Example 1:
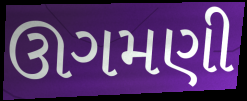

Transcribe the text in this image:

ઊગમણી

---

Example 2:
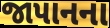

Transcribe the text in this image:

જાપાનના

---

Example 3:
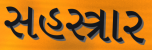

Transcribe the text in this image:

સહસ્ત્રાર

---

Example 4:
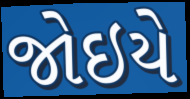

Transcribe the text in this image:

જોઇયે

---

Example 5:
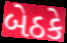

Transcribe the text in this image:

બેઠકે